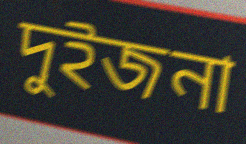
দুইজনা